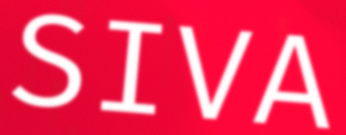
SIVA